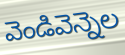
వెండివెన్నెల